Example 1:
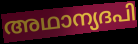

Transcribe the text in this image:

അഥാന്യദപി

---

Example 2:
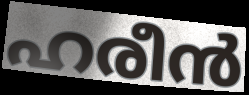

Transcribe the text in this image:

ഹരീൻ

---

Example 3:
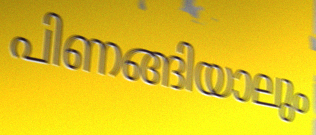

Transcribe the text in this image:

പിണങ്ങിയാലും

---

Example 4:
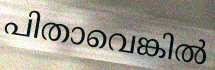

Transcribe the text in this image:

പിതാവെങ്കിൽ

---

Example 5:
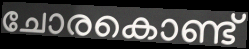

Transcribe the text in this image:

ചോരകൊണ്ട്